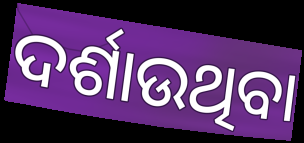
ଦର୍ଶାଉଥିବା